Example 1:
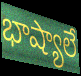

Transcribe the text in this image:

భాష్యాలే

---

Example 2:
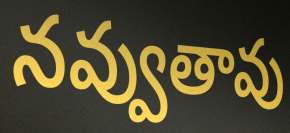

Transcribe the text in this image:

నవ్వుతావు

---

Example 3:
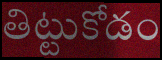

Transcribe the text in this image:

తిట్టుకోడం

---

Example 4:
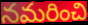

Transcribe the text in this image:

నమరించి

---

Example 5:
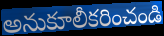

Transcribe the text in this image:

అనుకూలీకరించండి